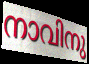
നാവിനു